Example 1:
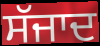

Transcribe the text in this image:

ਸੱਜਾਦ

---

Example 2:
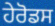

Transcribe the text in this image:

ਹੇਰੋਡਸ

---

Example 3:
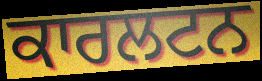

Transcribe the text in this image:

ਕਾਰਲਟਨ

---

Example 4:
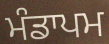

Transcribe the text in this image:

ਮੰਡਾਪਮ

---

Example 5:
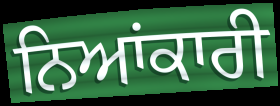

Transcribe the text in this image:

ਨਿਆਂਕਾਰੀ